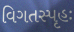
વિગતસ્પૃહઃ